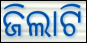
ଜିଲାଟି